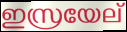
ഇസ്രയേല്